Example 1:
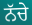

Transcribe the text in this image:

ਨੱਚੇ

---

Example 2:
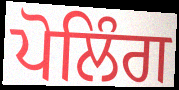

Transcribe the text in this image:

ਪੋਲਿੰਗ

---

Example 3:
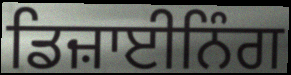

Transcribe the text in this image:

ਡਿਜ਼ਾਈਨਿੰਗ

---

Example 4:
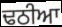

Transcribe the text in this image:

ਢਠੀਆ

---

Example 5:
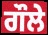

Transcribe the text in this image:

ਗੌਲੇ